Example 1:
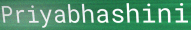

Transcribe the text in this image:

Priyabhashini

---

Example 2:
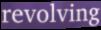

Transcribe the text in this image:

revolving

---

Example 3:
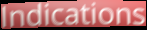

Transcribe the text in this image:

Indications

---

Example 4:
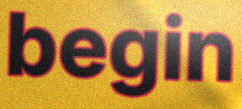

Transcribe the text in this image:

begin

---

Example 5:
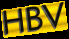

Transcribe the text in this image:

HBV